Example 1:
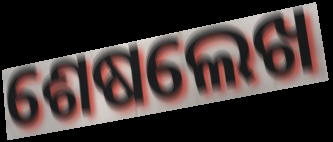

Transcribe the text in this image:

ଶେଷଲେଖ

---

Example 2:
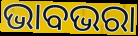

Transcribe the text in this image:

ଭାବଭରା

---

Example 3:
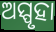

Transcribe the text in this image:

ଅସ୍ପୃହା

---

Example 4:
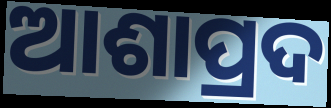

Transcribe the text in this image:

ଆଶାପ୍ରଦ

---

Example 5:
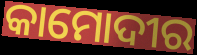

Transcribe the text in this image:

କାମୋଦୀର